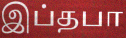
இப்தபா